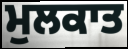
ਮੁਲਕਾਤ